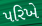
પરિખે